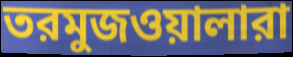
তরমুজওয়ালারা